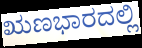
ಋಣಭಾರದಲ್ಲಿ